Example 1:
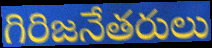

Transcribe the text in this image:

గిరిజనేతరులు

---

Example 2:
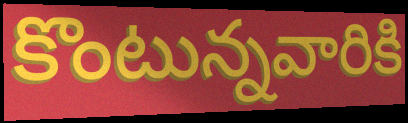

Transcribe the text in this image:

కొంటున్నవారికి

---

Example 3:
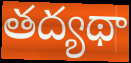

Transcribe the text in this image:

తద్యథా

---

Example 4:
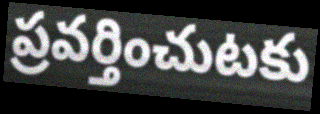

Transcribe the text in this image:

ప్రవర్తించుటకు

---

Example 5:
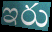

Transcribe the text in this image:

ఇరు